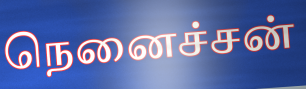
நெனைச்சன்